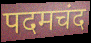
पदमचंद